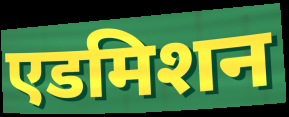
एडमिशन